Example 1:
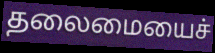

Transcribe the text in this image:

தலைமையைச்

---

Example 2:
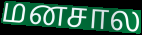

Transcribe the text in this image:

மனசால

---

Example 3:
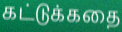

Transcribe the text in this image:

கட்டுக்கதை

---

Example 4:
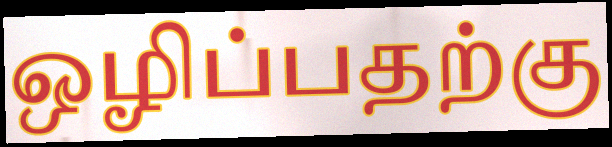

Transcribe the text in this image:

ஒழிப்பதற்கு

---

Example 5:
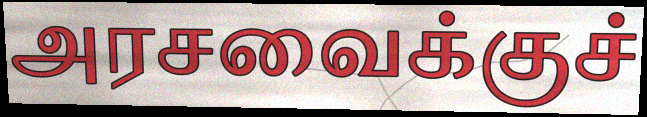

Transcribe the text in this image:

அரசவைக்குச்